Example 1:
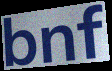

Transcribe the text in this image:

bnf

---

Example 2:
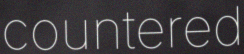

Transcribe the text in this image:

countered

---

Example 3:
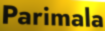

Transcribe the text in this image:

Parimala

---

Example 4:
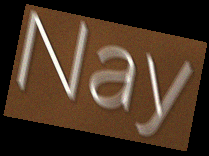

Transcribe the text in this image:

Nay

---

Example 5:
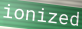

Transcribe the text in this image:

ionized